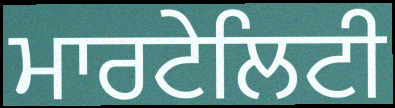
ਮਾਰਟੇਲਿਟੀ